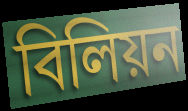
বিলিয়ন